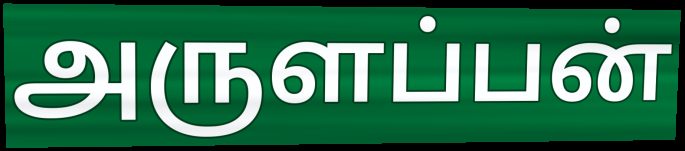
அருளப்பன்